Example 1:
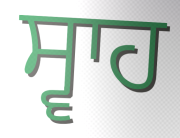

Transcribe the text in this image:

ਸ੍ਵਾਹ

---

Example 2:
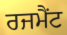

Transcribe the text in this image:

ਰਜਮੈਂਟ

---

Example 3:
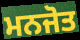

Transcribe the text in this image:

ਮਨਜੋਤ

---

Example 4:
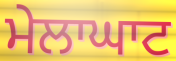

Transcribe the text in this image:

ਮੇਲਾਘਾਟ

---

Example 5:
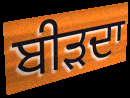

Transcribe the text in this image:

ਬੀੜਦਾ